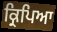
ਕ੍ਰਿਪਿਆ